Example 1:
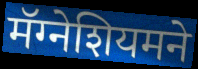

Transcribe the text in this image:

मॅग्नेशियमने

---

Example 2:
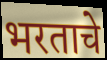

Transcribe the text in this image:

भरताचे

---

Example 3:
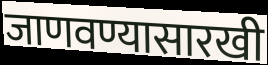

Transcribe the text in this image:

जाणवण्यासारखी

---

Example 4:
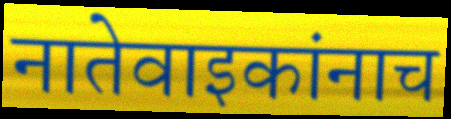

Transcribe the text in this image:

नातेवाइकांनाच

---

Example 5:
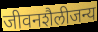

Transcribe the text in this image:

जीवनशैलीजन्य